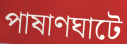
পাষাণঘাটে